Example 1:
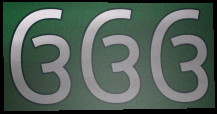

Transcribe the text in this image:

ઉઉઉ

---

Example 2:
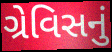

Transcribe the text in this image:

ગ્રેવિસનું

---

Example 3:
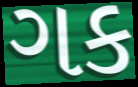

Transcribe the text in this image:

ગક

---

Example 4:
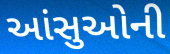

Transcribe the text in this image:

આંસુઓની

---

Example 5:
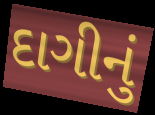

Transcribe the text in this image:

દાગીનું